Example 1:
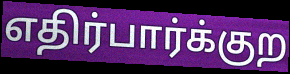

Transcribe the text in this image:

எதிர்பார்க்குற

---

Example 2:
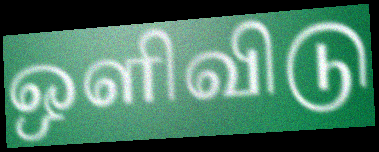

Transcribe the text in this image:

ஒளிவிடு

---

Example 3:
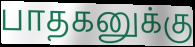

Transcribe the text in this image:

பாதகனுக்கு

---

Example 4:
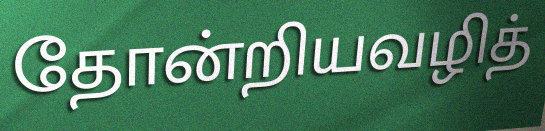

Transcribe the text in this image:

தோன்றியவழித்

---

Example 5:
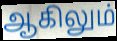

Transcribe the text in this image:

ஆகிலும்